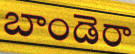
బాండెరా